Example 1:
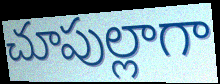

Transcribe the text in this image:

చూపుల్లాగా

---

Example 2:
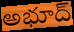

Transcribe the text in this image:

అభూద్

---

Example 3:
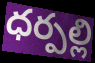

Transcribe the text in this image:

ధర్పల్లి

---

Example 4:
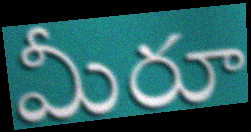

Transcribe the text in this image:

మీరూ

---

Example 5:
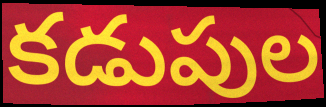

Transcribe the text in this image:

కడుపుల